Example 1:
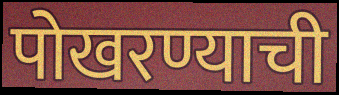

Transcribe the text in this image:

पोखरण्याची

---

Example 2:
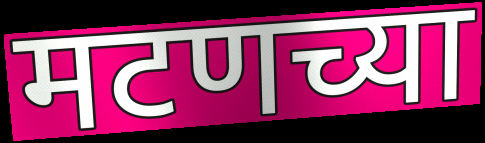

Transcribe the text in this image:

मटणच्या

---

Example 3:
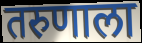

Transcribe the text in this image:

तरुणाला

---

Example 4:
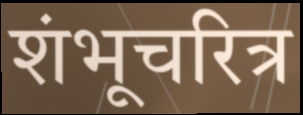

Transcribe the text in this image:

शंभूचरित्र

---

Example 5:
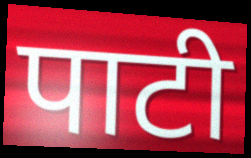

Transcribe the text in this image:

पाटी